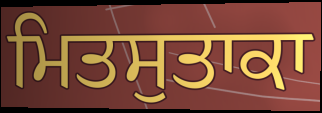
ਮਿਤਸੁਤਾਕਾ